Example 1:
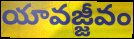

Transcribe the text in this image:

యావజ్జీవం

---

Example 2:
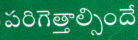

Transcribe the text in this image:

పరిగెత్తాల్సిందే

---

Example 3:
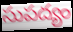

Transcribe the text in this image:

సుపద్యం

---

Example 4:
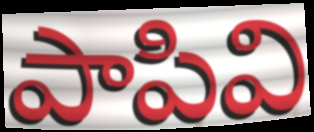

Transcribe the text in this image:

పాపివి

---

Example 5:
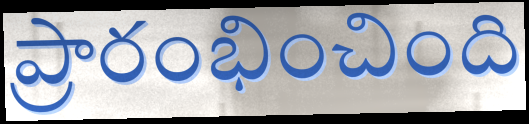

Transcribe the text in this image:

ప్రారంభించింది